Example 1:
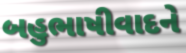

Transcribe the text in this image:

બહુભાષીવાદને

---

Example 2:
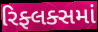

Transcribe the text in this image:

રિફ્લક્સમાં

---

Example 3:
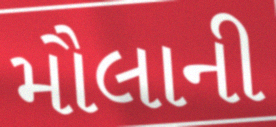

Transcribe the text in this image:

મૌલાની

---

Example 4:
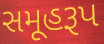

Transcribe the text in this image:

સમૂહરૂપ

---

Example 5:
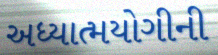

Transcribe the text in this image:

અધ્યાત્મયોગીની